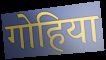
गोहिया